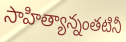
సాహిత్యాన్నంతటినీ